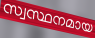
സ്വസ്ഥനമായ